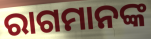
ରାଗମାନଙ୍କ